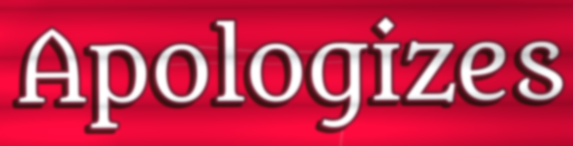
Apologizes